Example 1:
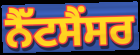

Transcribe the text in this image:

ਨੈੱਟਸੈਂਸਰ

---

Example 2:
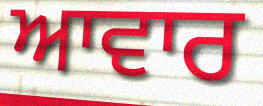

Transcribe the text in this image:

ਆਵਾਰ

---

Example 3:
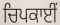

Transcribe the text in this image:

ਚਿਪਕਾਈਂ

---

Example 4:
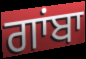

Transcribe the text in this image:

ਗਾਂਬਾ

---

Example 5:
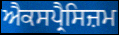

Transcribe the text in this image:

ਐਕਸਪ੍ਰੈਸਿਜ਼ਮ